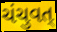
ચંચુવત્